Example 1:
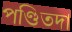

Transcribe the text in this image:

পণ্ডিতদা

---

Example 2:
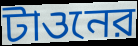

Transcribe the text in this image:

টাওনের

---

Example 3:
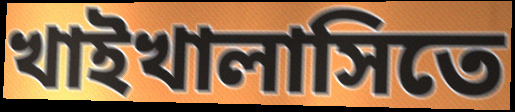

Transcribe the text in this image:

খাইখালাসিতে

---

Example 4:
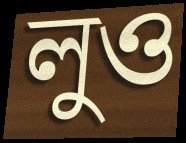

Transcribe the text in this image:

লুও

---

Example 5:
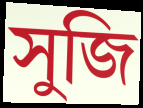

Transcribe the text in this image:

সুজি